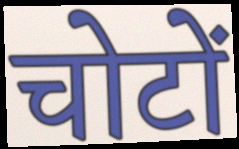
चोटों